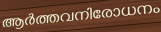
ആർത്തവനിരോധനം